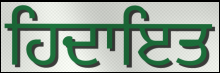
ਹਿਦਾਇਤ